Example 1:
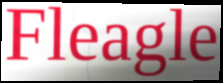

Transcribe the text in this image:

Fleagle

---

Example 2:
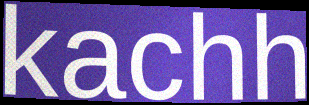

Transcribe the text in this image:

kachh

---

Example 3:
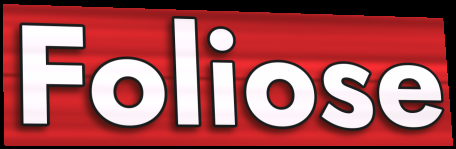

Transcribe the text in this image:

Foliose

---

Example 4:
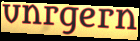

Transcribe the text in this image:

unrgern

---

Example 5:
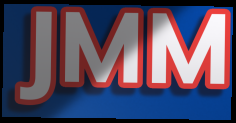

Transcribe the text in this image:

JMM